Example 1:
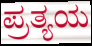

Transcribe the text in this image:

ಪ್ರತ್ಯಯ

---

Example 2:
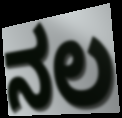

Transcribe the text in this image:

ನಲ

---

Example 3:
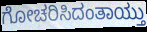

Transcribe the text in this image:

ಗೋಚರಿಸಿದಂತಾಯ್ತು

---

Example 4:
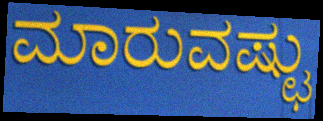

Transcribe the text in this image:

ಮಾರುವಷ್ಟು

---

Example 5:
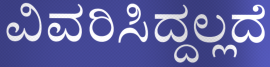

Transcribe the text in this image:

ವಿವರಿಸಿದ್ದಲ್ಲದೆ